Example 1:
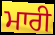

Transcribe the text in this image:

ਮਾਰੀ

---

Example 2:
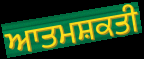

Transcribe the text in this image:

ਆਤਮਸ਼ਕਤੀ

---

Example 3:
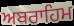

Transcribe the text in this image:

ਅਬਰਾਹਿਮ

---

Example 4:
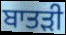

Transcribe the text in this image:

ਬਾਤੜੀ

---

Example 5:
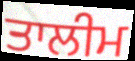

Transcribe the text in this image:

ਤਾਲੀਮ